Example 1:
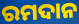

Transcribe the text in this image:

ରମଦାନ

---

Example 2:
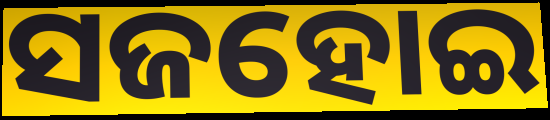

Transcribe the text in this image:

ସଜହୋଇ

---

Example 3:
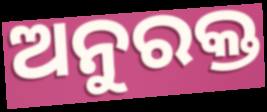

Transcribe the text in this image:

ଅନୁରକ୍ତ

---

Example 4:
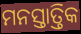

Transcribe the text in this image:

ମନସ୍ତାତ୍ତିକ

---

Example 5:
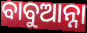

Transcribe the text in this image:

ବାବୁଆନ୍ନା